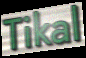
Tikal